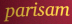
parisam